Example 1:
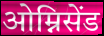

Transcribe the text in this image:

ओम्निसेंड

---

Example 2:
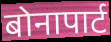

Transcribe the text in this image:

बोनापार्ट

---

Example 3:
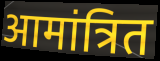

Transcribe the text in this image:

आमांत्रित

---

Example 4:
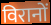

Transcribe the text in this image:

विरानों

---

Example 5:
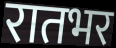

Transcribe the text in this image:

रातभर